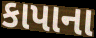
કાપાના